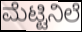
ಮೆಟ್ಟಿನಿಲೆ